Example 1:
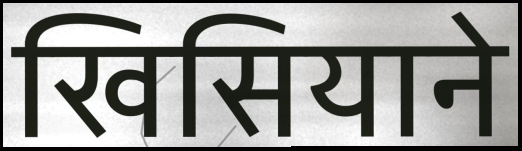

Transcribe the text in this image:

खिसियाने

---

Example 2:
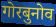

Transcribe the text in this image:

गोरबुनोव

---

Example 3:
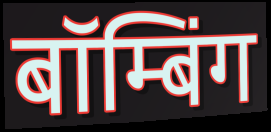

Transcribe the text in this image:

बॉम्बिंग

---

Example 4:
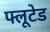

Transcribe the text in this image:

फ्लूटेड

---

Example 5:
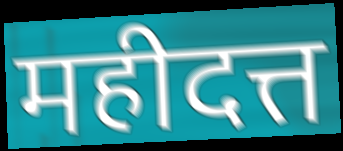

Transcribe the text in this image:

महीदत्त